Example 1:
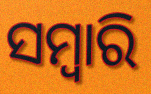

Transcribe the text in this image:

ସମ୍ବାରି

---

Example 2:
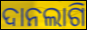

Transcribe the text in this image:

ଦାନଲାଗି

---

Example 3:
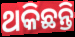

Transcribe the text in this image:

ଥକିଛନ୍ତି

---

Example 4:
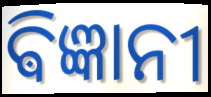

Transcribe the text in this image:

ଵିଜ୍ଞାନୀ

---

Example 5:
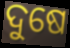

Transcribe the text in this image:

ଦୁଷେ